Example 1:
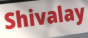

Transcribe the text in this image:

Shivalay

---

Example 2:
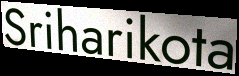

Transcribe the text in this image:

Sriharikota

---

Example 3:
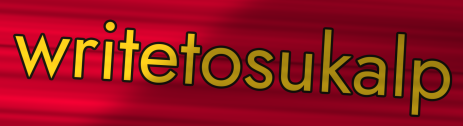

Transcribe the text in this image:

writetosukalp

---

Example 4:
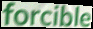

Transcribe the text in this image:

forcible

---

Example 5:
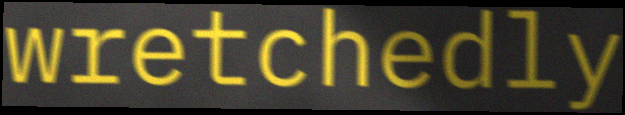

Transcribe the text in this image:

wretchedly